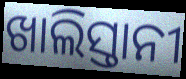
ଖାଲିସ୍ତାନୀ